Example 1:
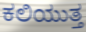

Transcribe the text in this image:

ಕಲಿಯುತ್ತ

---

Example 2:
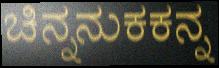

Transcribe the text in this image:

ಚಿನ್ನನುಕಕನ್ನ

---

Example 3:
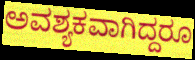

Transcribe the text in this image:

ಅವಶ್ಯಕವಾಗಿದ್ದರೂ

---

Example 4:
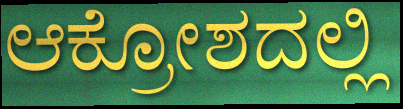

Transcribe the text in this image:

ಆಕ್ರೋಶದಲ್ಲಿ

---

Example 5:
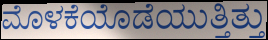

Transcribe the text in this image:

ಮೊಳಕೆಯೊಡೆಯುತ್ತಿತ್ತು